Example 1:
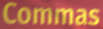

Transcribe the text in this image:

Commas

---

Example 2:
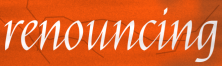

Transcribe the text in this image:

renouncing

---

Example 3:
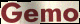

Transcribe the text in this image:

Gemo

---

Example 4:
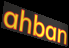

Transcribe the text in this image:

ahban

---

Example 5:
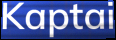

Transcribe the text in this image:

Kaptai